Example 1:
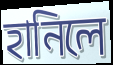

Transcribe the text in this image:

হানিলে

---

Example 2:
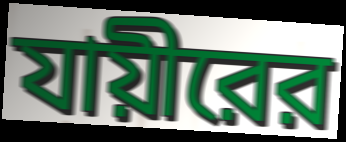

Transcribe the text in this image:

যায়ীরের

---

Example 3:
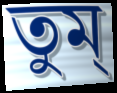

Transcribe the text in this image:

তুম্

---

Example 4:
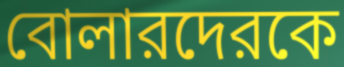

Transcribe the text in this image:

বোলারদেরকে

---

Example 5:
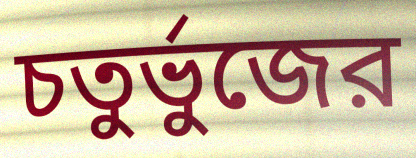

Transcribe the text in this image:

চতুর্ভুজের